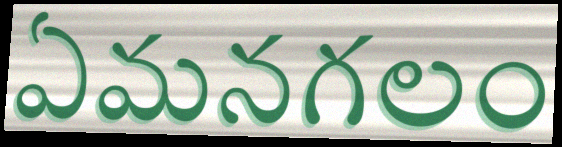
ఏమనగలం